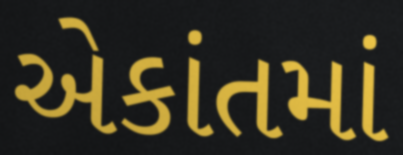
એકાંતમાં